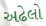
અઢેલો